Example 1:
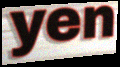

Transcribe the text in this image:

yen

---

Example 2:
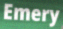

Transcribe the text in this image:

Emery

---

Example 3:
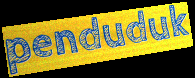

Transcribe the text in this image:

penduduk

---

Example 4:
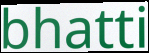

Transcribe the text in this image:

bhatti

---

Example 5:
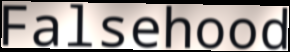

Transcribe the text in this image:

Falsehood